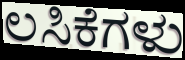
ಲಸಿಕೆಗಳು